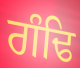
ਗੰਢਿ